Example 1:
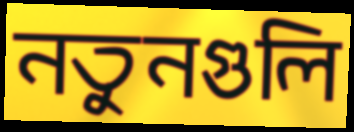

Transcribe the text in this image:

নতুনগুলি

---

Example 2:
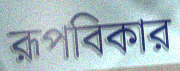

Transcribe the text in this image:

রূপবিকার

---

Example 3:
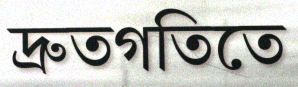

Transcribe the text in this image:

দ্রুতগতিতে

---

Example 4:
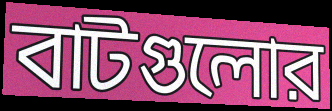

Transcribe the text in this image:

বাটগুলোর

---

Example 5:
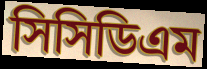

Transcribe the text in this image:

সিসিডিএম